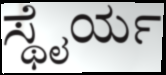
ಸ್ಥೈರ್ಯ